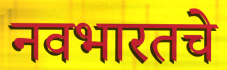
नवभारतचे